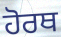
ਹੋਰਥ